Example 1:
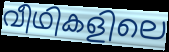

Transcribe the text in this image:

വീഥികളിലെ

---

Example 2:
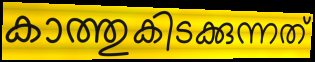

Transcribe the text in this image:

കാത്തുകിടക്കുന്നത്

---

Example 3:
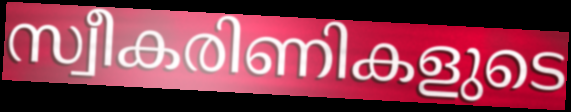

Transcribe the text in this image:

സ്വീകരിണികളുടെ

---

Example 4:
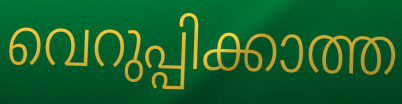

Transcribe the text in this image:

വെറുപ്പിക്കാത്ത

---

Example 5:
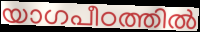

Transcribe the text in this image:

യാഗപീഠത്തിൽ